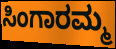
ಸಿಂಗಾರಮ್ಮ